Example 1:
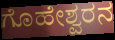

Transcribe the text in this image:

ಗೊಹೇಶ್ವರನ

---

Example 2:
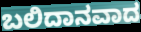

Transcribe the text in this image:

ಬಲಿದಾನವಾದ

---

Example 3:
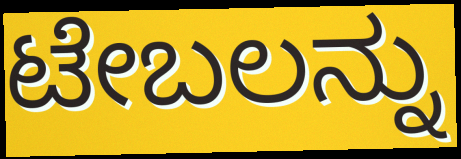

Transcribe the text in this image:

ಟೇಬಲನ್ನು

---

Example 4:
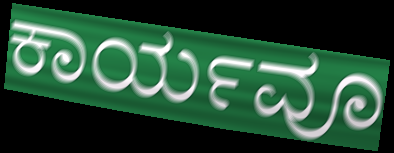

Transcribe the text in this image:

ಕಾರ್ಯವೂ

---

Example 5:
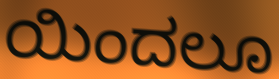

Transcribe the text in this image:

ಯಿಂದಲೂ